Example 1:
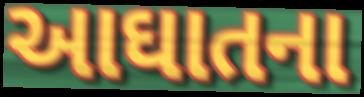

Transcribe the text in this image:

આઘાતના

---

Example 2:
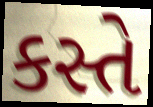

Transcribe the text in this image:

કસ્તે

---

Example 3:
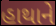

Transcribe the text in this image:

હાથાને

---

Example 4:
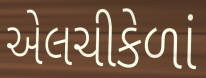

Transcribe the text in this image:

એલચીકેળાં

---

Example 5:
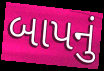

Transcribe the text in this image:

બાપનું